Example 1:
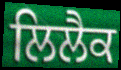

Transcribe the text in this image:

ਲਿਲੈਕ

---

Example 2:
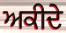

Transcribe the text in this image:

ਅਕੀਦੇ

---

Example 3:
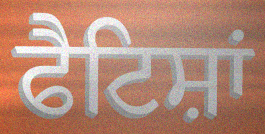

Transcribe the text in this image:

ਫੈਟਿਸ਼ਾਂ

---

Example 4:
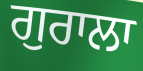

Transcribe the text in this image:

ਗੁਰਾਲਾ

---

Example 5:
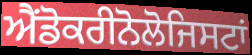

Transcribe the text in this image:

ਐਂਡੋਕਰੀਨੋਲੋਜਿਸਟਾਂ